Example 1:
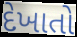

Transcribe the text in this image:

દેખાતો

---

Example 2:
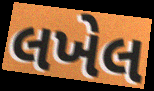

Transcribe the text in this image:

લખેલ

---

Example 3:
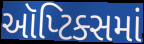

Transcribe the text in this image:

ઑપ્ટિક્સમાં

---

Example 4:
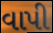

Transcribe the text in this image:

વાપી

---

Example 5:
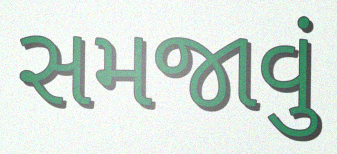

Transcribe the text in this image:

સમજાવું